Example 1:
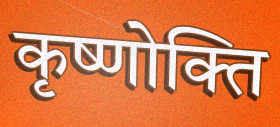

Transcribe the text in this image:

कृष्णोक्ति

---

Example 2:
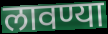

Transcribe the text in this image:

लावण्या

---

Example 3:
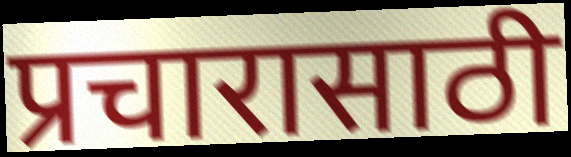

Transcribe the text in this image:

प्रचारासाठी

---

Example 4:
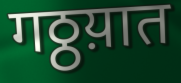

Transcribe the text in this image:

गठ्ठय़ात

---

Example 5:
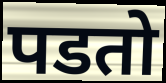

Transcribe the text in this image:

पडतो